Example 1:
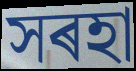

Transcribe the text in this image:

সৰহা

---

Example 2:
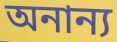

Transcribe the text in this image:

অনান্য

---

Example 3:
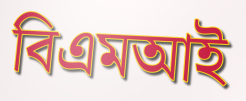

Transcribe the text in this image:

বিএমআই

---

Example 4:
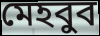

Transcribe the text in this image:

মেহবুব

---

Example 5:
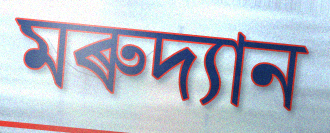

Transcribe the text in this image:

মৰুদ্যান